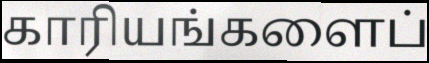
காரியங்களைப்